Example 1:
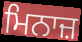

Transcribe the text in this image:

ਮਿਨਾਜ਼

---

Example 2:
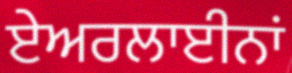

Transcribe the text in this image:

ਏਅਰਲਾਈਨਾਂ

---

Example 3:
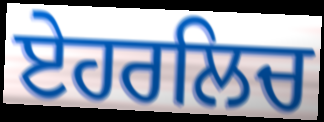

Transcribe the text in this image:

ਏਹਰਲਿਚ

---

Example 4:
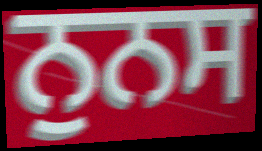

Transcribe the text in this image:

ਨੁਨਸ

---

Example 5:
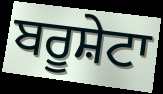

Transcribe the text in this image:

ਬਰੂਸ਼ੇਟਾ